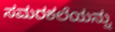
ಸಮರಕಲೆಯನ್ನು